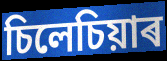
চিলেচিয়াৰ